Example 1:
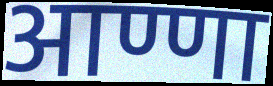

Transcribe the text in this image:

आण्णा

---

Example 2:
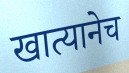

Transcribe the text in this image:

खात्यानेच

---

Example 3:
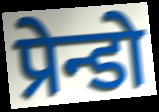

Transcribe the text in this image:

प्रेन्डो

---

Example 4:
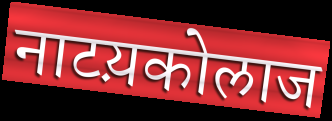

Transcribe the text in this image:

नाटय़कोलाज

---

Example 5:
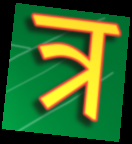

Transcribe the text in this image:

त्र